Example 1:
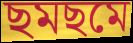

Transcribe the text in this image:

ছমছমে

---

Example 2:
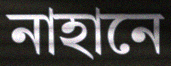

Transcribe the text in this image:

নাহানে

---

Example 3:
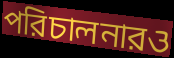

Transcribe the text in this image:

পরিচালনারও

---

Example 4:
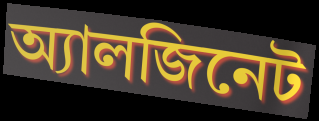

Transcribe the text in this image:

অ্যালজিনেট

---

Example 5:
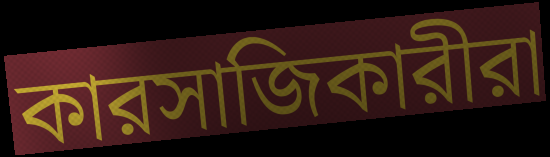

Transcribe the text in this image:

কারসাজিকারীরা